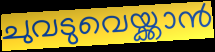
ചുവടുവെയ്ക്കാൻ